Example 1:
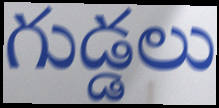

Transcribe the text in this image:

గుడ్డలు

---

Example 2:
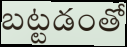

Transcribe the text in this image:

బట్టడంతో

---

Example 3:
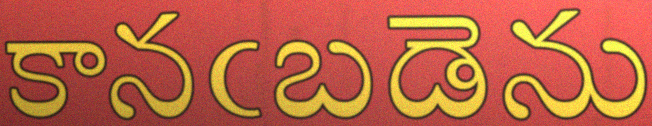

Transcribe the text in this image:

కానఁబడెను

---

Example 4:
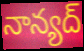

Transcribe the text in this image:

నాన్యద్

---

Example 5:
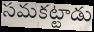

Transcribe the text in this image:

సమకట్టాడు